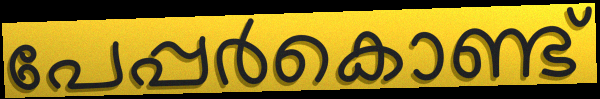
പേപ്പർകൊണ്ട്